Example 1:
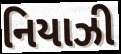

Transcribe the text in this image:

નિયાઝી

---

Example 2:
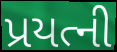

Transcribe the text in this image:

પ્રયત્ની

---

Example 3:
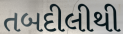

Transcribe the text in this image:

તબદીલીથી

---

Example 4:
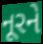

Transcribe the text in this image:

નૂરને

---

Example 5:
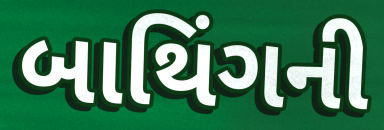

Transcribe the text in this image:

બાથિંગની